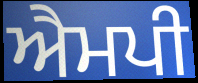
ਐਮਪੀ